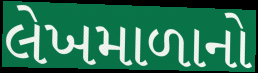
લેખમાળાનો